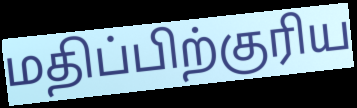
மதிப்பிற்குரிய